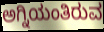
ಅಗ್ನಿಯಂತಿರುವ